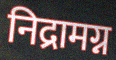
निद्रामग्न